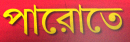
পারোতে